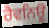
ਰੈਵਨਿਊ